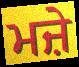
ਮਜ਼ੇ